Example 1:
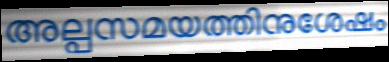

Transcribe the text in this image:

അല്പസമയത്തിനുശേഷം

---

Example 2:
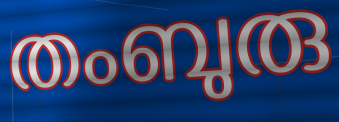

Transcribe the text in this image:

തംബുരു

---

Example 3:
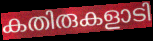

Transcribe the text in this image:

കതിരുകളാടി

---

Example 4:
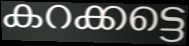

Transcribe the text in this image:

കറക്കട്ടെ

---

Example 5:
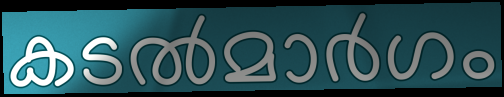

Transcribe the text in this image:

കടൽമാർഗം